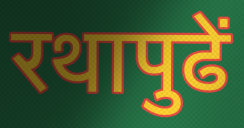
रथापुढें